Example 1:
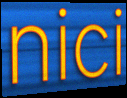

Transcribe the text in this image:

nici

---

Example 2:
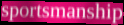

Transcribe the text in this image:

sportsmanship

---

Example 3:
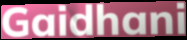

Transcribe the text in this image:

Gaidhani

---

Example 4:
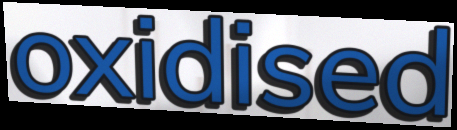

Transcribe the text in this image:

oxidised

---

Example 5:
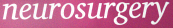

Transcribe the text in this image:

neurosurgery